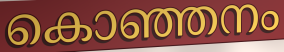
കൊഞ്ഞനം